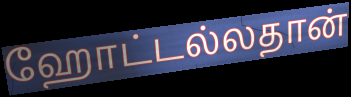
ஹோட்டல்லதான்